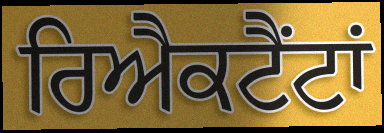
ਰਿਐਕਟੈਂਟਾਂ